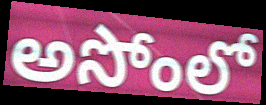
అసోంలో